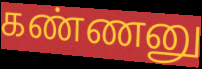
கண்ணனு